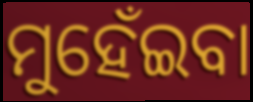
ମୁହେଁଇବା